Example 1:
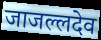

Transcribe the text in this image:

जाजल्लदेव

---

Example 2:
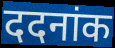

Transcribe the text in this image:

ददनांक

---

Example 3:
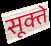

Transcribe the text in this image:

सूक्ते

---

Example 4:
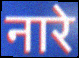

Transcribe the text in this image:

नारे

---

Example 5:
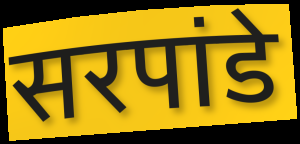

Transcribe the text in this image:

सरपांडे